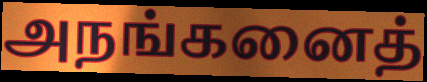
அநங்கனைத்